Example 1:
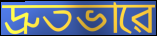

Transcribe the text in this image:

দ্ৰুতভাৱে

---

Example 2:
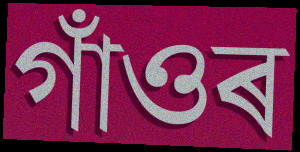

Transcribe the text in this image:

গাঁওৰ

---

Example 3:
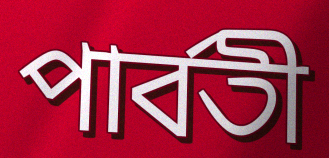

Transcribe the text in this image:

পাৰ্বতী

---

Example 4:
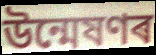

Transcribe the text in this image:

উন্মেষণৰ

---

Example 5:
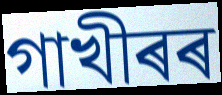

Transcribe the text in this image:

গাখীৰৰ